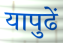
यापुढें